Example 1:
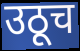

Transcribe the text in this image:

उठूच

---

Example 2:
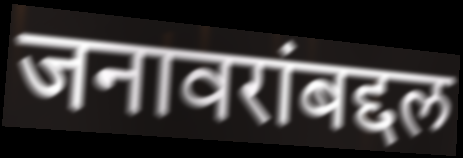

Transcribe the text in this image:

जनावरांबद्दल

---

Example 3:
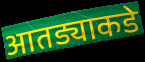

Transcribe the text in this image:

आतड्याकडे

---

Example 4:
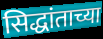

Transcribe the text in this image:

सिद्धांताच्या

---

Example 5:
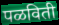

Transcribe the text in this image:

पळविती